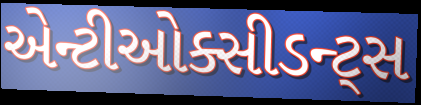
એન્ટીઓક્સીડન્ટ્સ